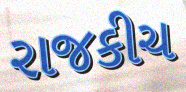
રાજકીચ